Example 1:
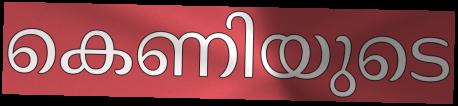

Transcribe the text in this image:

കെണിയുടെ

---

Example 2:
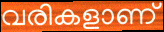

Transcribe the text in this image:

വരികളാണ്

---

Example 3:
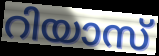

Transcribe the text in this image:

റിയാസ്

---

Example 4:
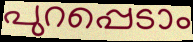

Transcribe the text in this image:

പുറപ്പെടാം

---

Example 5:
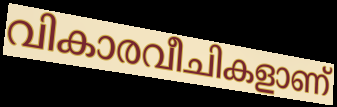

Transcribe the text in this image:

വികാരവീചികളാണ്